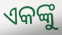
ଏକଙ୍କୁ